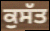
ਕੁਸੱਤ